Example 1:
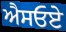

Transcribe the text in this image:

ਐਸਓਏ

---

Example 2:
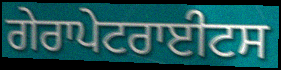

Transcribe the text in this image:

ਗੇਰਾਪੇਟਰਾਈਟਸ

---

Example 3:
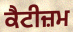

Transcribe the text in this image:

ਕੈਟੀਜ਼ਮ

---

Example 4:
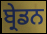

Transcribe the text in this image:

ਬ੍ਰੇਡਨ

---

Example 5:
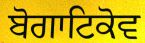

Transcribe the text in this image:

ਬੋਗਾਟਿਕੋਵ